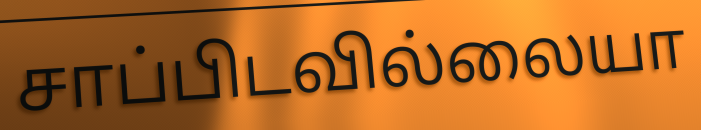
சாப்பிடவில்லையா